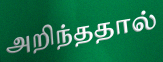
அறிந்ததால்